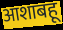
आशाबहू